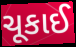
ચૂકાઈ